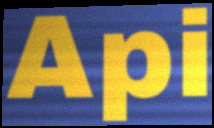
Api